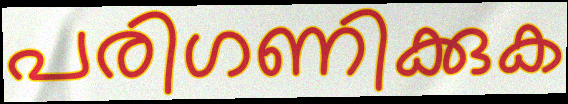
പരിഗണിക്കുക